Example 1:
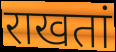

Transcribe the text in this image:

राखतां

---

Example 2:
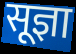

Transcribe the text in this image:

सूज्ञा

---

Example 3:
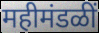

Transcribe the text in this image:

महीमंडळीं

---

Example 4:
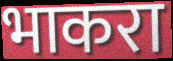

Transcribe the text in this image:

भाकरा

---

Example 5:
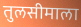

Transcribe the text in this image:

तुलसीमाला